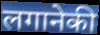
लगानेकी